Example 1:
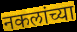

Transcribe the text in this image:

नकलांच्या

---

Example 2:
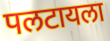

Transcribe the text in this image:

पलटायला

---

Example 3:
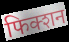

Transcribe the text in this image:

फिक्शन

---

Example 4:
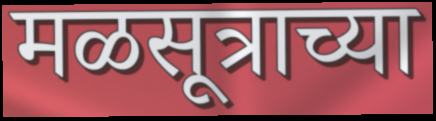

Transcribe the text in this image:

मळसूत्राच्या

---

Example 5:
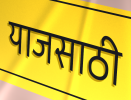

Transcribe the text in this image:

याजसाठी